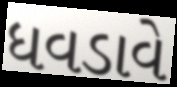
ધવડાવે